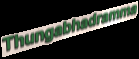
Thungabhadramma